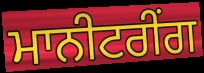
ਮਾਨੀਟਰੀਂਗ